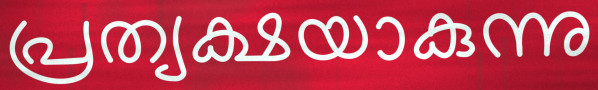
പ്രത്യക്ഷയാകുന്നു